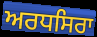
ਅਰਧਸਿਰਾ